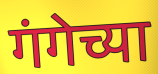
गंगेच्या